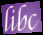
libc